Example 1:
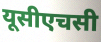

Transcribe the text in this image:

यूसीएचसी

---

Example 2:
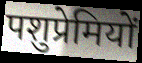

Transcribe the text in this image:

पशुप्रेमियों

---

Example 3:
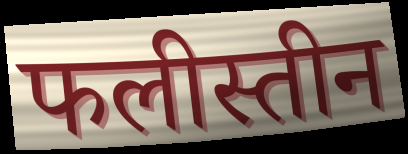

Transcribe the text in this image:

फलीस्तीन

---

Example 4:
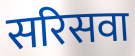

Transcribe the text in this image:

सरिसवा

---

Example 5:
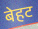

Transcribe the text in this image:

बेहट